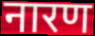
नारण